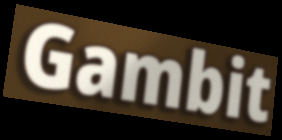
Gambit